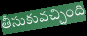
తీసుకువచ్చింది